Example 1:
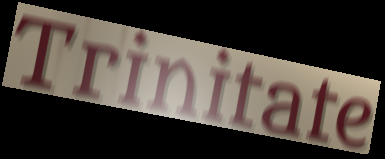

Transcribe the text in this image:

Trinitate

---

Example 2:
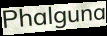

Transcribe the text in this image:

Phalguna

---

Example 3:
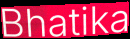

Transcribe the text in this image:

Bhatika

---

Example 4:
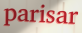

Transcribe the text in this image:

parisar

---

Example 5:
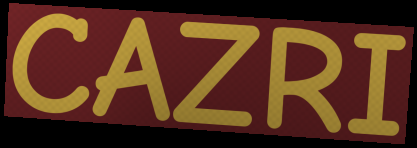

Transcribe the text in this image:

CAZRI